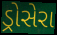
ડ્રોસેરા